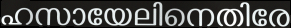
ഹസായേലിനെതിരേ